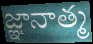
జ్ఞానాత్మ